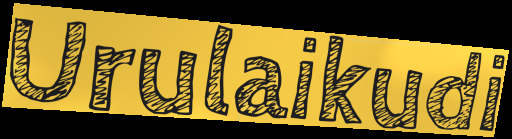
Urulaikudi